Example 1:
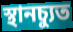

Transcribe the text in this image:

স্থানচ্যুত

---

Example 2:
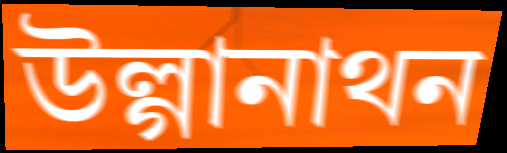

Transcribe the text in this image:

উল্গানাথন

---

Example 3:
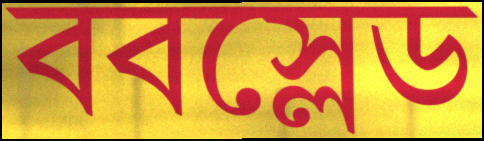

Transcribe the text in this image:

ববস্লেড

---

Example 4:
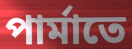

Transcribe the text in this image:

পার্মাতে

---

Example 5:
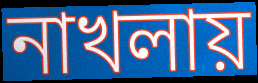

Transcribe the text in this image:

নাখলায়